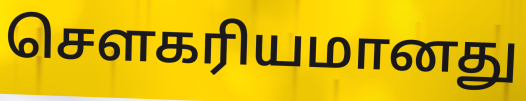
சௌகரியமானது